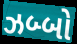
ઝબ્બો